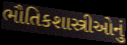
ભૌતિકશાસ્ત્રીઓનું